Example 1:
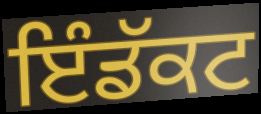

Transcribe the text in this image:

ਇੰਡੱਕਟ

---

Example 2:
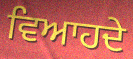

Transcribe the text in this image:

ਵਿਆਹਦੇ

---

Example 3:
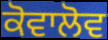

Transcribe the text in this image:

ਕੋਵਾਲੋਵ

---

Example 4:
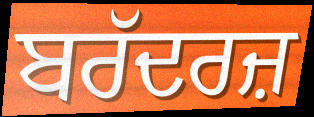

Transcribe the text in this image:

ਬਰੱਦਰਜ਼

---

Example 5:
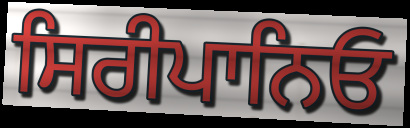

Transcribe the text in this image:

ਸਿਰੀਪਾਨਿਓ